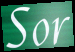
Sor